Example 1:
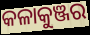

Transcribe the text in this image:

କଳାକୁଞ୍ଜର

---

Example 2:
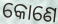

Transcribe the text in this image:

କୋଣେ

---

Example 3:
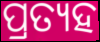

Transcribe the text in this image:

ପ୍ରତ୍ଯହ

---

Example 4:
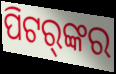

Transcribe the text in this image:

ପିଟର୍‌ଙ୍କର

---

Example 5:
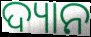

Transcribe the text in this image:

ଦ୍ୟାନ